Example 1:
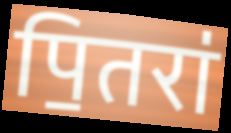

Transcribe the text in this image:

पि॒तरा॑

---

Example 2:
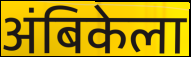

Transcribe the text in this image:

अंबिकेला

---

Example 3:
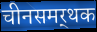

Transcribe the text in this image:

चीनसमर्थक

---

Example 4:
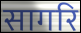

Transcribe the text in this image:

सागरि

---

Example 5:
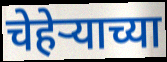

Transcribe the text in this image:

चेहेऱ्याच्या